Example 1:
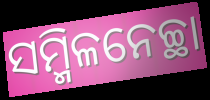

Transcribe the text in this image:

ସମ୍ମିଳନେଚ୍ଛା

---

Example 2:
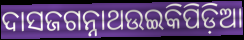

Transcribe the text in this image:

ଦାସଜଗନ୍ନାଥଉଇକିପିଡ଼ିଆ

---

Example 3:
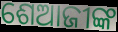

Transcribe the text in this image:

ଶେଆଜୀଙ୍କ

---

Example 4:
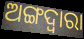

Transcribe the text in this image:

ଅଙ୍ଗଦ୍ଵାରା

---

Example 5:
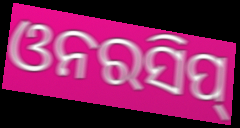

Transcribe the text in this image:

ଓନରସିପ୍